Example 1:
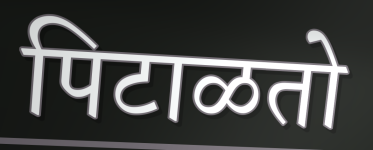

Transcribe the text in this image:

पिटाळतो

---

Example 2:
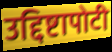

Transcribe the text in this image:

उद्दिष्टापोटी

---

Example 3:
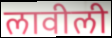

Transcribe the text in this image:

लावीली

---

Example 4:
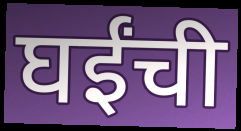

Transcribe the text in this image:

घईंची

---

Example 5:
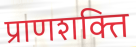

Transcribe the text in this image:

प्राणशक्ति